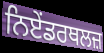
ਨਿਏਂਡਰਥਲਜ਼